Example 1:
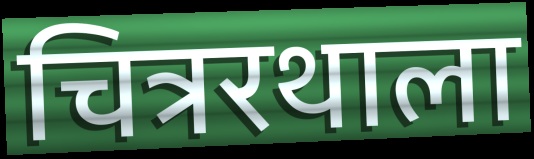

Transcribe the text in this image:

चित्ररथाला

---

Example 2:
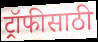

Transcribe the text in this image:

ट्रॉफीसाठी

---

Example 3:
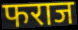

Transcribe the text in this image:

फराज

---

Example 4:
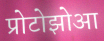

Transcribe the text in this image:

प्रोटोझोआ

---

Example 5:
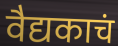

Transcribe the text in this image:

वैद्यकाचं